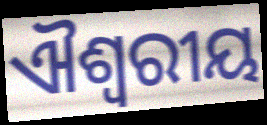
ଐଶ୍ୱରୀୟ